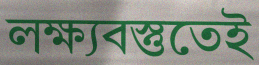
লক্ষ্যবস্তুতেই